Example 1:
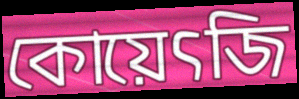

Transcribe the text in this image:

কোয়েৎজি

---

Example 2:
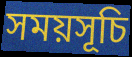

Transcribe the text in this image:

সময়সূচি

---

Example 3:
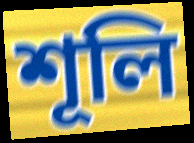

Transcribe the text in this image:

শূলি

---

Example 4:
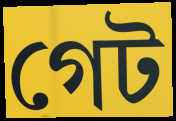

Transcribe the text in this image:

গেট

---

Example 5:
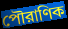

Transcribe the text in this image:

পৌরাণিক